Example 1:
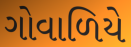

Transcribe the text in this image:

ગોવાળિયે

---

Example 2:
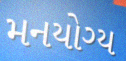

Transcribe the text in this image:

મનયોગ્ય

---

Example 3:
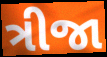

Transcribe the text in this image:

ત્રીજા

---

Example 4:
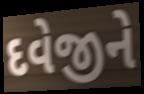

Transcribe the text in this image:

દવેજીને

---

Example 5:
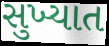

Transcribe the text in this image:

સુખ્યાત